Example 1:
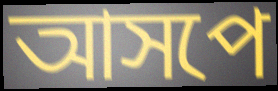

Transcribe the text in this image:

আসপে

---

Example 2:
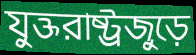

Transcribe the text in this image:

যুক্তরাষ্ট্রজুড়ে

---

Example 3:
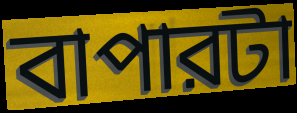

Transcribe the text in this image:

বাপারটা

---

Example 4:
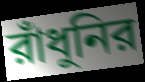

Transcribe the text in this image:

রাঁধুনির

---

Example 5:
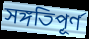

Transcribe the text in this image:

সঙ্গতিপূর্ণ